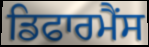
ਡਿਫਾਰਮੈਂਸ